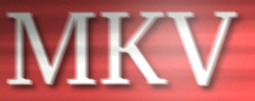
MKV